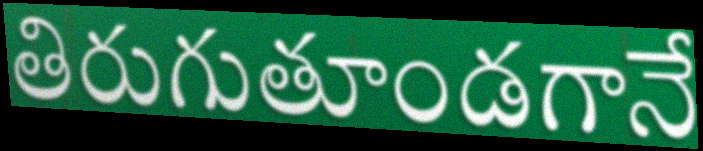
తిరుగుతూండగానే